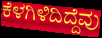
ಕೆಳಗಿಳಿದಿದ್ದೆವು